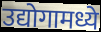
उद्योगामध्ये